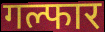
गल्फार